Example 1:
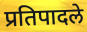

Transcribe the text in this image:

प्रतिपादले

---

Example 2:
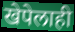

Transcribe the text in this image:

खेपेलाही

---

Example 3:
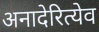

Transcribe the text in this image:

अनादेरित्येव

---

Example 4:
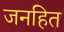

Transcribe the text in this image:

जनहित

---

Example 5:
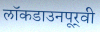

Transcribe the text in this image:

लॉकडाउनपूर्वी